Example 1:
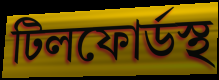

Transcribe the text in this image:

টিলফোর্ডস্থ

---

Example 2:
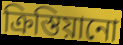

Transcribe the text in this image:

ক্রিস্তিয়ানো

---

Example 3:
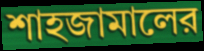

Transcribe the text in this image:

শাহজামালের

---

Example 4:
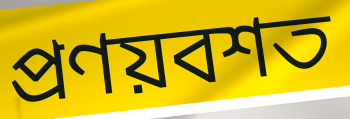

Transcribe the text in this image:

প্রণয়বশত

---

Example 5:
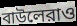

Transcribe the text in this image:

বাউলেরাও